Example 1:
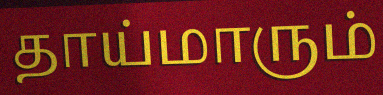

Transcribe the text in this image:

தாய்மாரும்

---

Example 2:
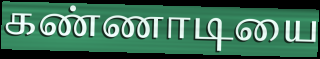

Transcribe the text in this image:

கண்ணாடியை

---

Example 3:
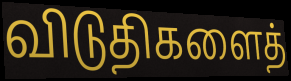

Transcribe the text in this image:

விடுதிகளைத்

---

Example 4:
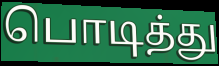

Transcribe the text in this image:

பொடித்து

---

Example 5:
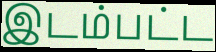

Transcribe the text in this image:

இடம்பட்ட